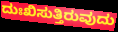
ದುಃಖಿಸುತ್ತಿರುವುದು